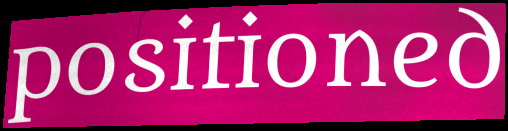
positioned